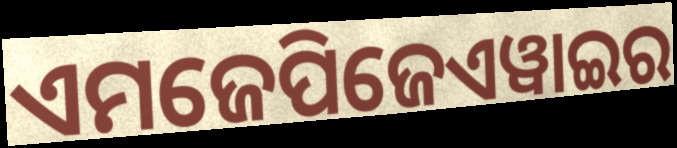
ଏମଜେପିଜେଏୱାଇର